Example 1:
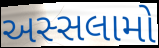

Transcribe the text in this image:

અસ્સલામો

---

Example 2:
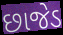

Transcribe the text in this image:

છાજેડ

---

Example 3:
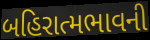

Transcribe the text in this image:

બહિરાત્મભાવની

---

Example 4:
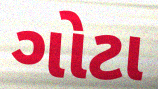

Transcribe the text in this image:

ગોટા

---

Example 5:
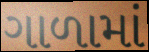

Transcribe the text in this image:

ગાળામાં